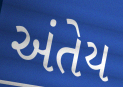
અંતેય